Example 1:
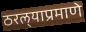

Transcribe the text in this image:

ठरल्याप्रमाणे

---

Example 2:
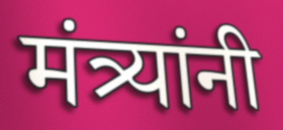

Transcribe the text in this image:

मंत्र्यांनी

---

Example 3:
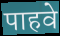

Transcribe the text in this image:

पाहवे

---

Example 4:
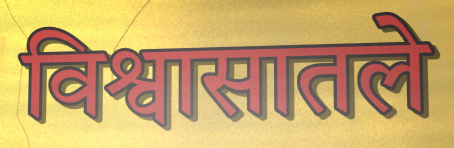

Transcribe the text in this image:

विश्वासातले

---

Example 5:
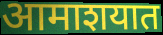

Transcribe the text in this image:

आमाशयात